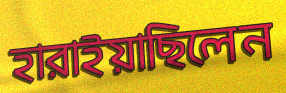
হারাইয়াছিলেন